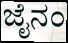
ಜೈನಂ